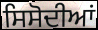
ਸਿਸੋਦੀਆਂ